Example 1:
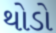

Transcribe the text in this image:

થોડો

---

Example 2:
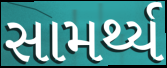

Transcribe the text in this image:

સામર્થ્ય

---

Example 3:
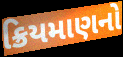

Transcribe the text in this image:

ક્રિયમાણનો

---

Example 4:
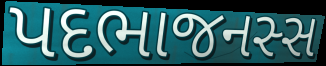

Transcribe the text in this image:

પદભાજનસ્સ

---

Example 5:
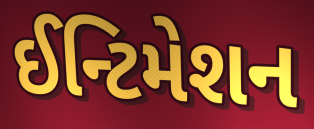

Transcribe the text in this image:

ઈન્ટિમેશન